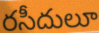
రసీదులూ